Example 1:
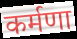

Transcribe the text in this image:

कर्मणा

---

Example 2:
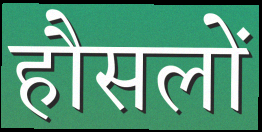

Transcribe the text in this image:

हौसलों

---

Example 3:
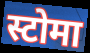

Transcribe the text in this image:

स्टोमा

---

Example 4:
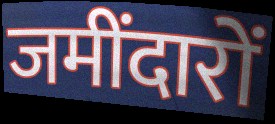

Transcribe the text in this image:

जमींदारों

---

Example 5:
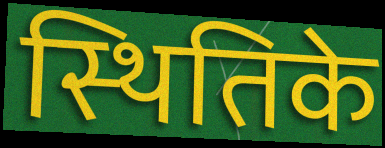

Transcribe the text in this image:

स्थितिके